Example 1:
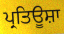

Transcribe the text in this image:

ਪ੍ਰਤਿਊਸ਼ਾ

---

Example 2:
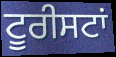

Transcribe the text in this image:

ਟੂਰੀਸਟਾਂ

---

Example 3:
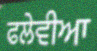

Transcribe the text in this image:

ਫਲੇਵੀਆ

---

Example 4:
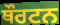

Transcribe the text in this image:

ਥੌਰਟਨ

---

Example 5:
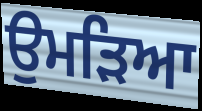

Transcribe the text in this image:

ਉਮੜਿਆ